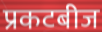
प्रकटबीज